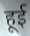
हूई